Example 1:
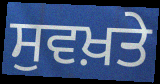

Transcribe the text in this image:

ਸੁਵਖ਼ਤੇ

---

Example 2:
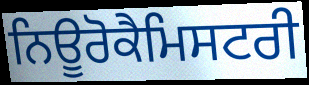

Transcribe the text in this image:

ਨਿਊਰੋਕੈਮਿਸਟਰੀ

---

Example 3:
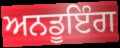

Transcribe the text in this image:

ਅਨਡੂਇੰਗ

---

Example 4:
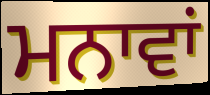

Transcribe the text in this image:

ਮਨਾਵਾਂ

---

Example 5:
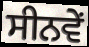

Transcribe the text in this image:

ਸੀਨਵੇਂ